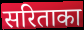
सरिताका